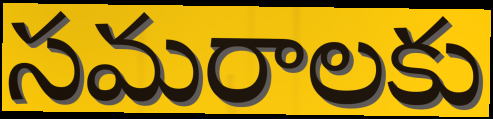
సమరాలకు